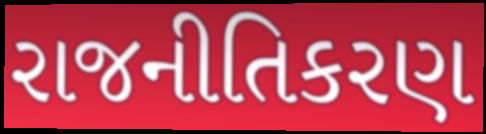
રાજનીતિકરણ